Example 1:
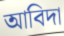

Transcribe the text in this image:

আবিদা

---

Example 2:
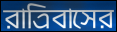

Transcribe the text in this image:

রাত্রিবাসের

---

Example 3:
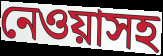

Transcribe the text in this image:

নেওয়াসহ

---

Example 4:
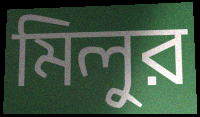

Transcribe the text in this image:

মিলুর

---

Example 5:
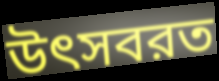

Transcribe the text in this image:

উৎসবরত